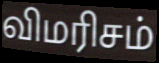
விமரிசம்